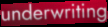
underwriting